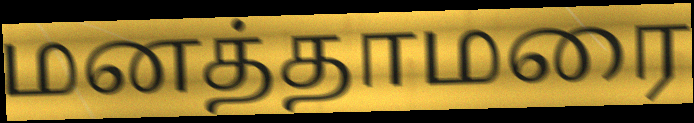
மனத்தாமரை